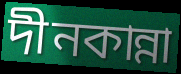
দীনকান্না